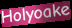
Holyoake